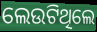
ଲେଉଟିଥିଲେ